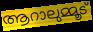
ആറാലുമ്മൂട്